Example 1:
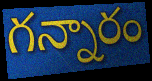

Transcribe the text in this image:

గన్నారం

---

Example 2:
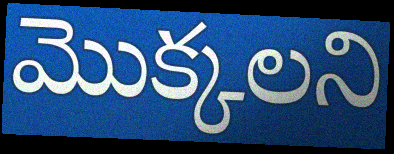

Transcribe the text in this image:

మొక్కలని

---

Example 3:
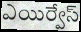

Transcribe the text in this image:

ఎయిర్వేస్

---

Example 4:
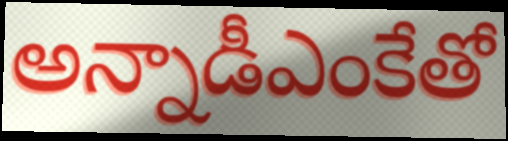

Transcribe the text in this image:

అన్నాడీఎంకేతో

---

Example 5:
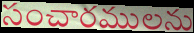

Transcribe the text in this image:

సంచారములను